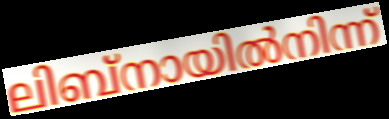
ലിബ്നായിൽനിന്ന്